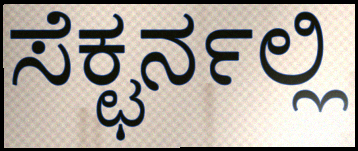
ಸೆಕ್ಟರ್ನಲ್ಲಿ